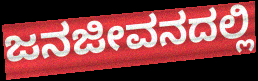
ಜನಜೀವನದಲ್ಲಿ